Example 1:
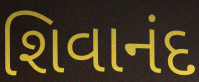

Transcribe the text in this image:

શિવાનંદ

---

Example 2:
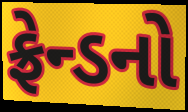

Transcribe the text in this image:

ફ્રેન્ડનો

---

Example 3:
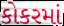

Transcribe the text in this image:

કોકરમાં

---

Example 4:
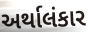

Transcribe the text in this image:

અર્થાલંકાર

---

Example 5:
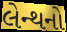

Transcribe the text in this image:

લેન્થનો